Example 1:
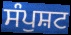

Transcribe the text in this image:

ਸੰਪੁਸ਼ਟ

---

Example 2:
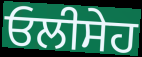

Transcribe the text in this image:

ਓਲੀਸੇਹ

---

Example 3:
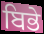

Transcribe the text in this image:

ਬਿਭੇ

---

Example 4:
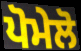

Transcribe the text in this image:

ਪੋਮੇਲੋ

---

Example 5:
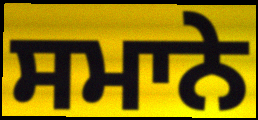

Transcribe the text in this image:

ਸਮਾਨੇ